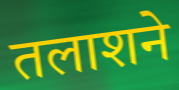
तलाशने